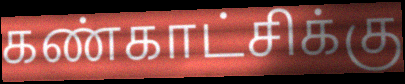
கண்காட்சிக்கு